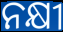
ନକ୍ଷୀ